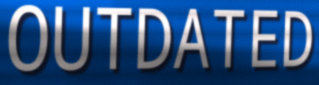
OUTDATED